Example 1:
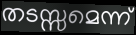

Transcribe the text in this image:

തടസ്സമെന്ന്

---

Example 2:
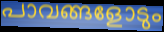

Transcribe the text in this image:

പാവങ്ങളോടും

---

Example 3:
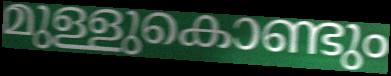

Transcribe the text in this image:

മുള്ളുകൊണ്ടും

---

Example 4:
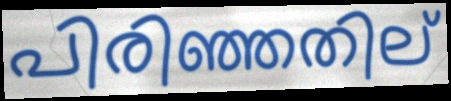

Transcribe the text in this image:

പിരിഞ്ഞതില്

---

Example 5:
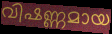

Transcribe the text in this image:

വിഷണ്ണമായ